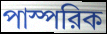
পাস্পরিক